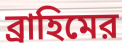
ব্রাহিমের